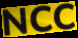
NCC